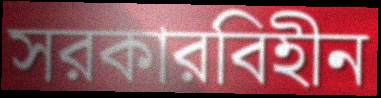
সরকারবিহীন